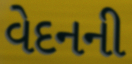
વેદનની